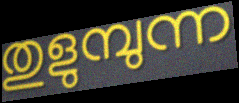
തുളുമ്പുന്ന